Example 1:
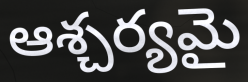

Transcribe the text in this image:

ఆశ్చర్యమై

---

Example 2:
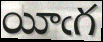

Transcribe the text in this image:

యీఁగ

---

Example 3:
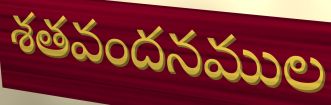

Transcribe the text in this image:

శతవందనముల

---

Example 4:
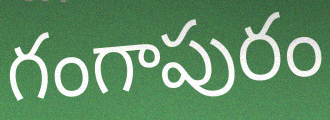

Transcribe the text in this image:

గంగాపురం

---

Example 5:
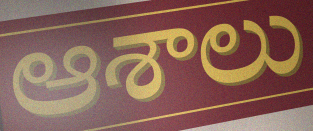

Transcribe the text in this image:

ఆశాలు